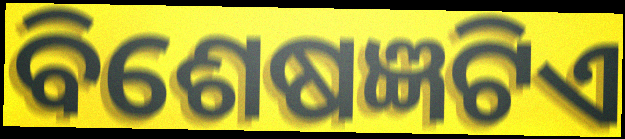
ବିଶେଷଜ୍ଞଟିଏ